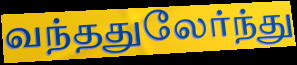
வந்ததுலேர்ந்து